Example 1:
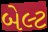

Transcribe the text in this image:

બેલ્ટ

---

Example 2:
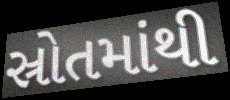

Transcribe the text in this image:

સ્રોતમાંથી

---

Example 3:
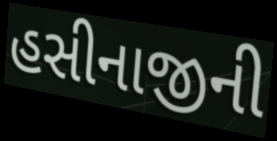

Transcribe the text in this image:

હસીનાજીની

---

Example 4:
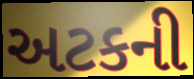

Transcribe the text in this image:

અટકની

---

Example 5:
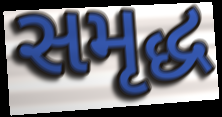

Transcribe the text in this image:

સમૃદ્ધ